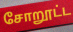
சோறூட்ட